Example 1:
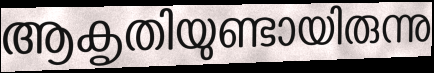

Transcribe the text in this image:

ആകൃതിയുണ്ടായിരുന്നു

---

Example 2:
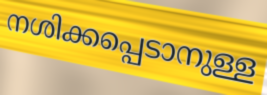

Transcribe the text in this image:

നശിക്കപ്പെടാനുള്ള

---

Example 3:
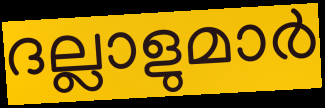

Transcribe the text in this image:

ദല്ലാളുമാർ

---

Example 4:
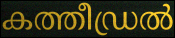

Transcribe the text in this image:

കത്തീഡ്രൽ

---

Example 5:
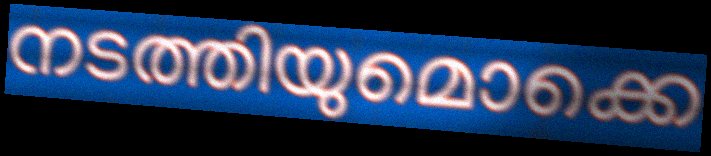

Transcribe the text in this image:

നടത്തിയുമൊക്കെ